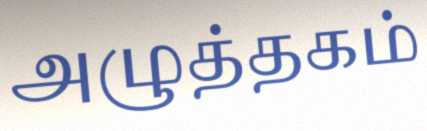
அழுத்தகம்